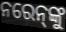
ନରେନ୍‌ଙ୍କୁ